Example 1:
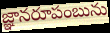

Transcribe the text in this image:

జ్ఞానరూపంబును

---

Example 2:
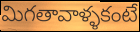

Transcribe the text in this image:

మిగతావాళ్ళకంటే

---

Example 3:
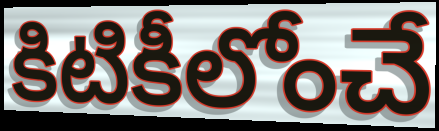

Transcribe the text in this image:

కిటికీలోంచే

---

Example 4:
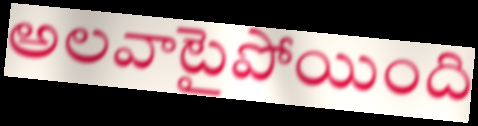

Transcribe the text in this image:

అలవాటైపోయింది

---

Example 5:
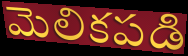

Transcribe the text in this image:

మెలికపడి